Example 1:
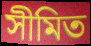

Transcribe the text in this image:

সীমিত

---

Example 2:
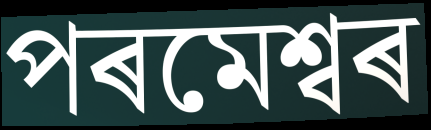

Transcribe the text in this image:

পৰমেশ্বৰ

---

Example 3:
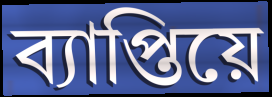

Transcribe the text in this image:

ব্য়াপ্তিয়ে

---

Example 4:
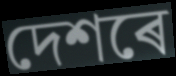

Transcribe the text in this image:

দেশৰে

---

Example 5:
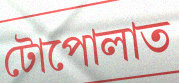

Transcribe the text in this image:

টোপোলাত